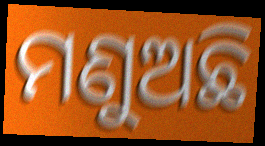
ମଣୁଅଛି